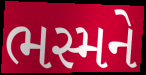
ભસ્મને